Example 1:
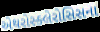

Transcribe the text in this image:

એથરોસ્ક્લેરોસિસના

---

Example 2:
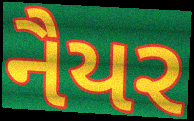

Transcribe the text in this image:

નૈયર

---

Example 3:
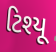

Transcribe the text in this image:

ટિશ્યૂ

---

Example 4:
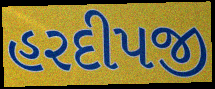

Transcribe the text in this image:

હરદીપજી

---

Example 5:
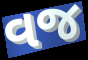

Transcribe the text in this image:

વજ